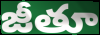
జీతూ